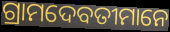
ଗ୍ରାମଦେବତୀମାନେ